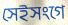
সেইসংগে